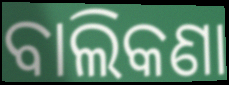
ବାଲିକଣା